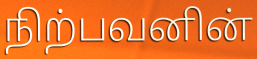
நிற்பவனின்